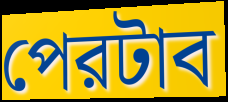
পেরটাব